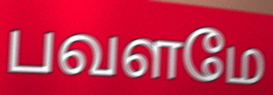
பவளமே